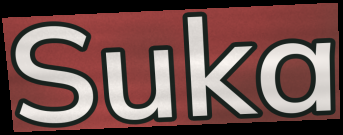
Suka